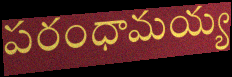
పరంధామయ్య